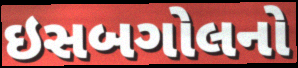
ઇસબગોલનો